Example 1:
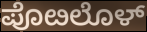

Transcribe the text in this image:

ಪೊೞಲೊಳ್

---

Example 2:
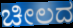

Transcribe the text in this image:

ಚೀಲದ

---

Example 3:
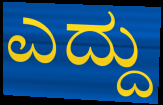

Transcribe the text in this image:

ಎದ್ದು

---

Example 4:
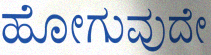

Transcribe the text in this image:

ಹೋಗುವುದೇ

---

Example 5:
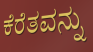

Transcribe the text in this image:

ಕೆರೆತವನ್ನು